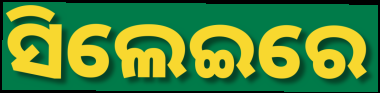
ସିଲେଇରେ